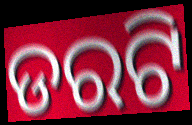
ଡରଟି